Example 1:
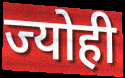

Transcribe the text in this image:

ज्योही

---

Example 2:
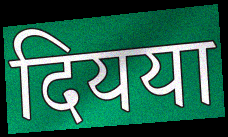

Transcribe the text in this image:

दियया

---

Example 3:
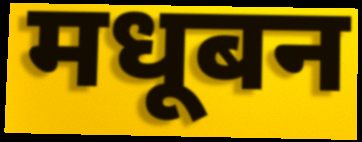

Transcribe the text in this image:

मधूबन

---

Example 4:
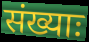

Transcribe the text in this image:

संख्याः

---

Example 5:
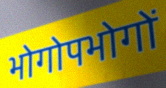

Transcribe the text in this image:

भोगोपभोगों